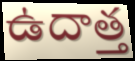
ఉదాత్త